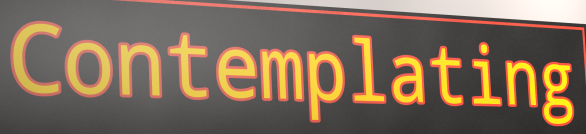
Contemplating